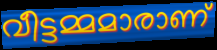
വീട്ടമ്മമാരാണ്